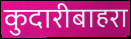
कुदारीबाहरा